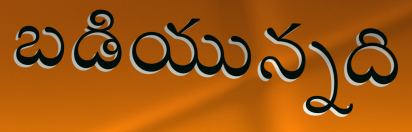
బడియున్నది